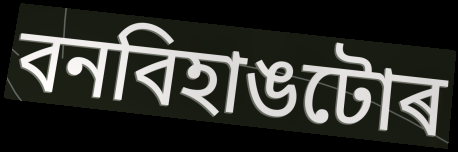
বনবিহাঙটোৰ